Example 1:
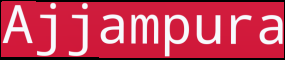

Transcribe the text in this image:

Ajjampura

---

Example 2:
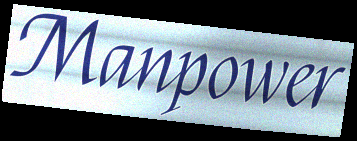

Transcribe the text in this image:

Manpower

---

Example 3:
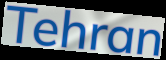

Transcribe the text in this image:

Tehran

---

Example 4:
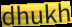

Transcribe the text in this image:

dhukh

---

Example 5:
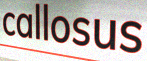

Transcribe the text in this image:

callosus